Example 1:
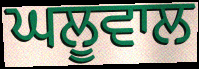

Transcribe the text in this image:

ਘਲੂਵਾਲ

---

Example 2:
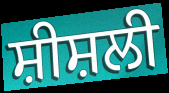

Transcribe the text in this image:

ਸ਼ੀਸ਼ਲੀ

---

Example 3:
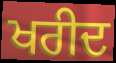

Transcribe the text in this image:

ਖਰੀਦ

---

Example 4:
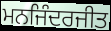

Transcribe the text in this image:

ਮਨਜਿੰਦਰਜੀਤ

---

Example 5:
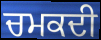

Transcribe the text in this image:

ਚਮਕਦੀ